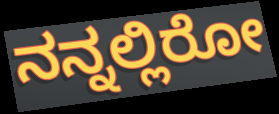
ನನ್ನಲ್ಲಿರೋ